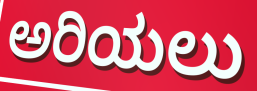
ಅರಿಯಲು